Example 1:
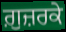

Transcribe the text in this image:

ਗ਼ੁਜ਼ਰਕੇ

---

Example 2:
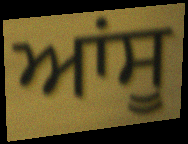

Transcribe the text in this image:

ਆਂਸੂ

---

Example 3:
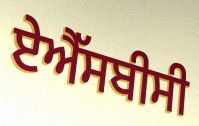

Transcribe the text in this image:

ਏਐੱਸਬੀਸੀ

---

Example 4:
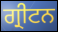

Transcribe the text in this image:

ਗ੍ਰੀਟਨ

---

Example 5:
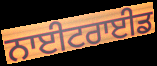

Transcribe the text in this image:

ਨਾਈਟਰਾਈਡ